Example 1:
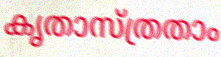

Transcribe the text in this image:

കൃതാസ്ത്രതാം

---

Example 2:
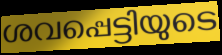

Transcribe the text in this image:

ശവപ്പെട്ടിയുടെ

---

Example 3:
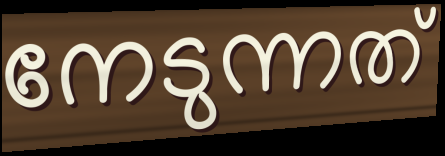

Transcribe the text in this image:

നേടുന്നത്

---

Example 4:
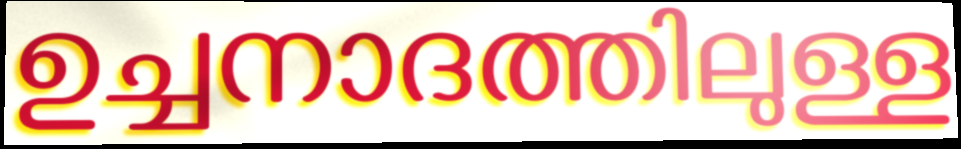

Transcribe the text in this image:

ഉച്ചനാദത്തിലുള്ള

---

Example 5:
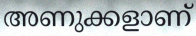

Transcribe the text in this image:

അണുക്കളാണ്